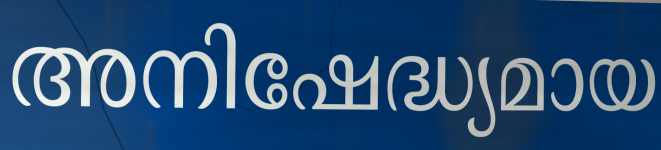
അനിഷേദ്ധ്യമായ